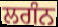
ਲਗੰਨ